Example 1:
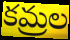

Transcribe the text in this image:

కమ్రల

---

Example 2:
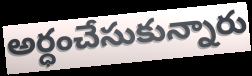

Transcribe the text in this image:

అర్ధంచేసుకున్నారు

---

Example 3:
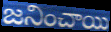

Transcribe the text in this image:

జనించాయి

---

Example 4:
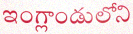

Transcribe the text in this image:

ఇంగ్లాండులోని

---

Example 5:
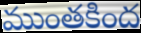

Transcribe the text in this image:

ముంతకింద